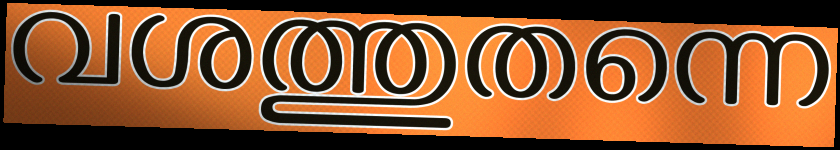
വശത്തുതന്നെ